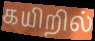
கயிறில்